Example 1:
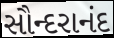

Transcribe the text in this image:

સૌન્દરાનંદ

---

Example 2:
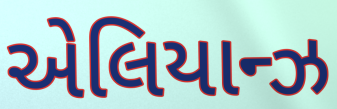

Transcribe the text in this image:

એલિયાન્ઝ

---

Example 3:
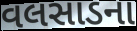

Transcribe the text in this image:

વલસાડના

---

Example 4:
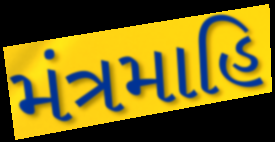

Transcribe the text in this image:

મંત્રમાહિ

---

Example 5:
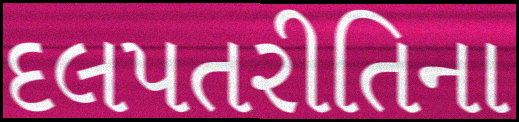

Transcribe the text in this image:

દલપતરીતિના